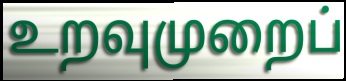
உறவுமுறைப்